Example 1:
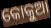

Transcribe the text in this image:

କୋକୁଆ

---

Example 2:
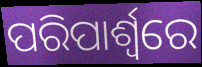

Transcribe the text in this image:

ପରିପାର୍ଶ୍ୱରେ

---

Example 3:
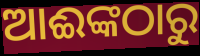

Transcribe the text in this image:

ଆଈଙ୍କଠାରୁ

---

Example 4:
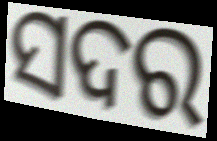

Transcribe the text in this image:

ସଦର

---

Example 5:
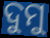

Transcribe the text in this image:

ଦୁମୁ